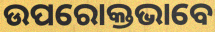
ଉପରୋକ୍ତଭାବେ